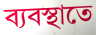
ব্যবস্থাতে